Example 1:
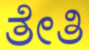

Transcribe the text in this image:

ತೇತಿ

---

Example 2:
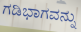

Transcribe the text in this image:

ಗಡಿಭಾಗವನ್ನು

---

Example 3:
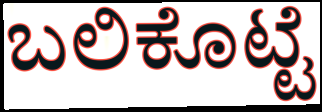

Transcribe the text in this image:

ಬಲಿಕೊಟ್ಟೆ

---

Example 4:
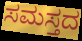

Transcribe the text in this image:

ಸಮಸ್ತದ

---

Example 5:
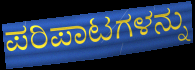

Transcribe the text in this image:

ಪರಿಪಾಟಗಳನ್ನು